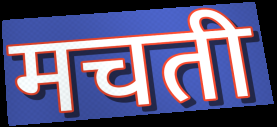
मचती